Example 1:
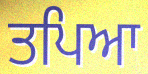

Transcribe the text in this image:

ਤਪਿਆ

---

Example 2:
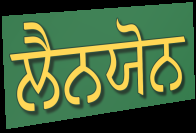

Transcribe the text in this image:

ਲੈਨਯੋਨ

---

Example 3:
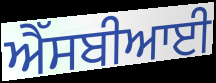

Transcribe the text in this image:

ਐੱਸਬੀਆਈ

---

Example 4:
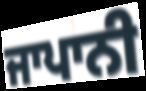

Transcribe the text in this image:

ਜਾਪਾਨੀ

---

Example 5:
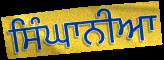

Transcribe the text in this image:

ਸਿੰਘਾਨੀਆ